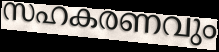
സഹകരണവും